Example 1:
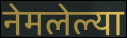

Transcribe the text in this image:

नेमलेल्या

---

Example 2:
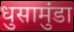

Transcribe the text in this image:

धुसामुंडा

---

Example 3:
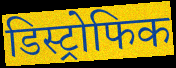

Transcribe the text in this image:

डिस्ट्रोफिक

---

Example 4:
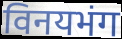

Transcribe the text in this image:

विनयभंग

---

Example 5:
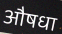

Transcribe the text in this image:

औषधा